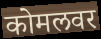
कोमलवर